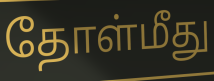
தோள்மீது